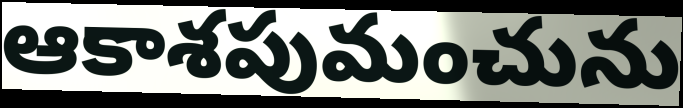
ఆకాశపుమంచును